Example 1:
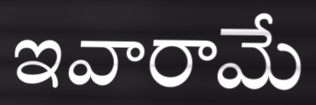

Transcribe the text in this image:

ఇవారామే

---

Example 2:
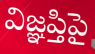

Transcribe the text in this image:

విజ్ఞప్తిపై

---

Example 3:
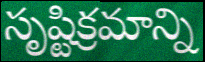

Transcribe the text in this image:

సృష్టిక్రమాన్ని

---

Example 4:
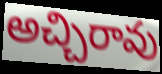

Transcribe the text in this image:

అచ్చిరావు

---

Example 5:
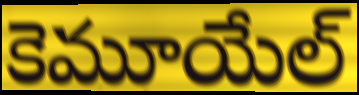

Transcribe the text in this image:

కెమూయేల్